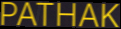
PATHAK